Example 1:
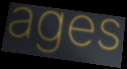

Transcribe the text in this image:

ages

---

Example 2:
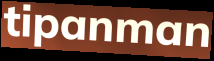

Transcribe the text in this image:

tipanman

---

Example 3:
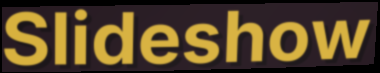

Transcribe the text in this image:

Slideshow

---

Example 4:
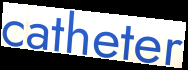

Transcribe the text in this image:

catheter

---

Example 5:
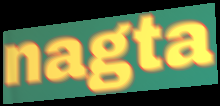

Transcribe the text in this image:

nagta